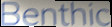
Benthic